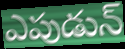
ఎపుడున్